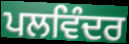
ਪਲਵਿੰਦਰ